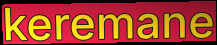
keremane